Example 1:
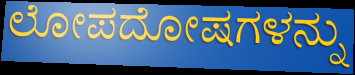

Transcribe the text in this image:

ಲೋಪದೋಷಗಳನ್ನು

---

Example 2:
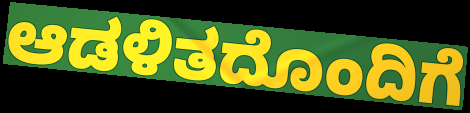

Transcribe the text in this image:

ಆಡಳಿತದೊಂದಿಗೆ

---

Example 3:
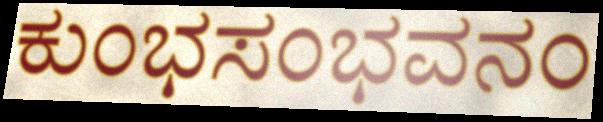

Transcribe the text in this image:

ಕುಂಭಸಂಭವನಂ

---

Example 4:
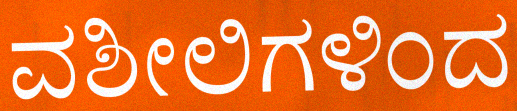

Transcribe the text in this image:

ವಶೀಲಿಗಳಿಂದ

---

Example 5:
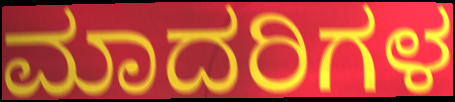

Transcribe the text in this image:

ಮಾದರಿಗಳ